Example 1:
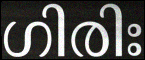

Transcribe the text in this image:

ഗിരിഃ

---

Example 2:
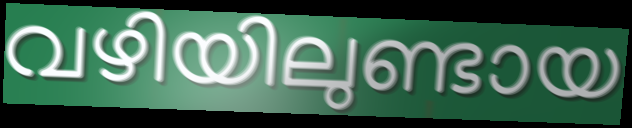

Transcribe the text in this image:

വഴിയിലുണ്ടായ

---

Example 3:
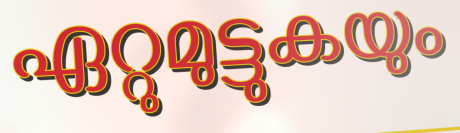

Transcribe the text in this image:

ഏറ്റുമുട്ടുകയും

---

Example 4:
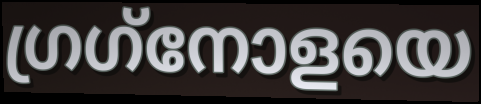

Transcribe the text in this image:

ഗ്രഗ്‌നോളയെ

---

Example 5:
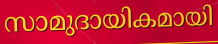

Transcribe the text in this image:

സാമുദായികമായി